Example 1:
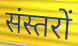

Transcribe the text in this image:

संस्तरों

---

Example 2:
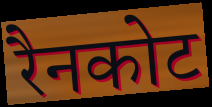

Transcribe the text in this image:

रैनकोट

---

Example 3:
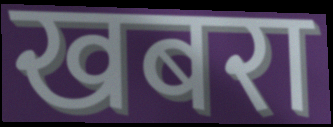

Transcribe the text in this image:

खबरा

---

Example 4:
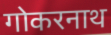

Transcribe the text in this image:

गोकरनाथ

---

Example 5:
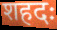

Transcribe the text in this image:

शहदः